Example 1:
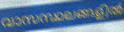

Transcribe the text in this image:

വാസസ്ഥലങ്ങളിൽ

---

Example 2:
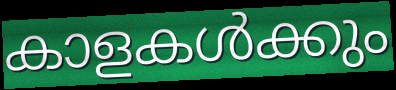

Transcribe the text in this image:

കാളകൾക്കും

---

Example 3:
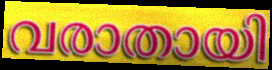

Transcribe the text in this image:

വരാതായി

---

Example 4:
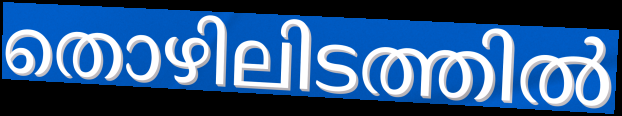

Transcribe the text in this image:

തൊഴിലിടത്തിൽ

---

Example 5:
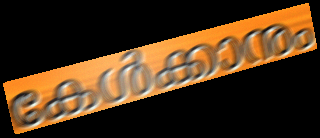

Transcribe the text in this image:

കേൾക്കാനും